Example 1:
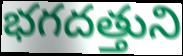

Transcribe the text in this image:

భగదత్తుని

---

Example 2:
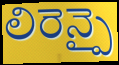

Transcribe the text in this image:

లిరెన్పై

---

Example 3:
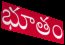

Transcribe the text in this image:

భూతం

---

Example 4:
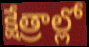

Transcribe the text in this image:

క్షేత్రాల్లో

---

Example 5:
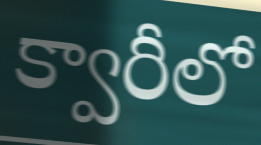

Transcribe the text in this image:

క్వారీలో